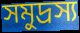
সমুদ্রস্য